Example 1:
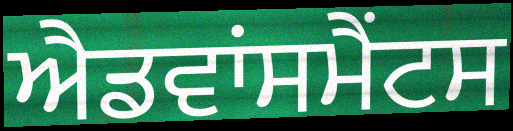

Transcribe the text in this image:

ਐਡਵਾਂਸਮੈਂਟਸ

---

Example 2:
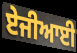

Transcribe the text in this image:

ਏਜੀਆਈ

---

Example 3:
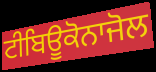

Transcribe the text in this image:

ਟੀਬਿਊਕੋਨਾਜੋਲ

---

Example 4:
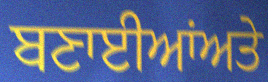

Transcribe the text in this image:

ਬਣਾਈਆਂਅਤੇ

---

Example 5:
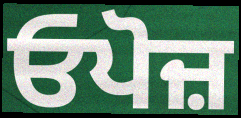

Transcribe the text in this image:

ਓਪੋਜ਼